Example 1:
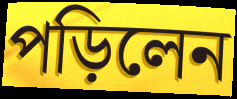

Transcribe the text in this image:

পড়িলেন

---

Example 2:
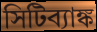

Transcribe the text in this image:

সিটিব্যাঙ্ক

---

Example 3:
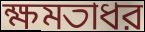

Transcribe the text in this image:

ক্ষমতাধর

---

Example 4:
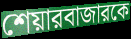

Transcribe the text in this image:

শেয়ারবাজারকে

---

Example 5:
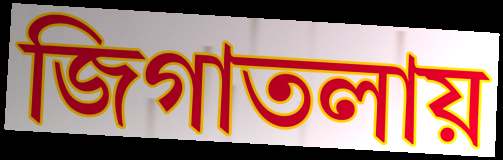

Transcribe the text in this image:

জিগাতলায়